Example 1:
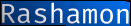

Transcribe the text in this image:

Rashamon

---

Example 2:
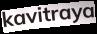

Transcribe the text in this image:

kavitraya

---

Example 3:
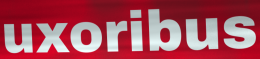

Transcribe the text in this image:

uxoribus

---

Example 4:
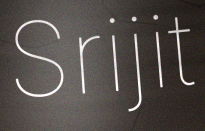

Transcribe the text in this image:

Srijit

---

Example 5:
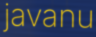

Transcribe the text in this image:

javanu